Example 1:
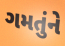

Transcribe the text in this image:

ગમતુંને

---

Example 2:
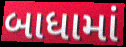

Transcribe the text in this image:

બાધામાં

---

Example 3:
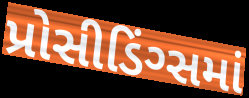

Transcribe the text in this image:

પ્રોસીડિંગ્સમાં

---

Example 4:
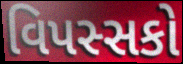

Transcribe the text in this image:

વિપસ્સકો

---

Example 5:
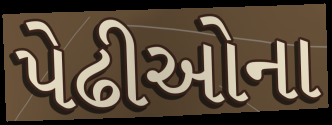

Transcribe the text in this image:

પેઢીઓના